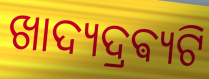
ଖାଦ୍ୟଦ୍ରଵ୍ୟଟି